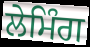
ਲੇਮਿੰਗ